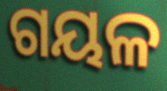
ଗୟଳ